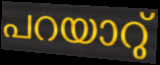
പറയാറു്